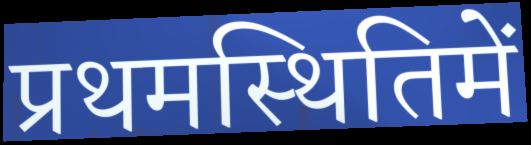
प्रथमस्थितिमें